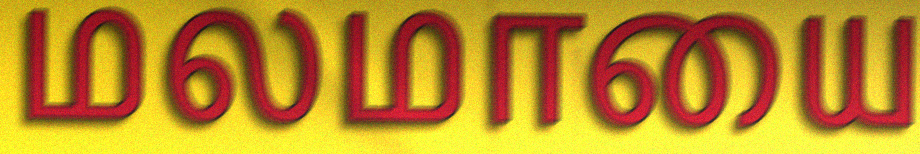
மலமாயை